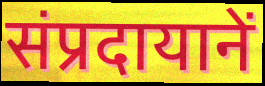
संप्रदायानें